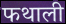
फथाली